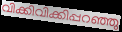
വിക്കിവിക്കിപ്പറഞ്ഞു